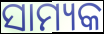
ସାମ୍ୟକ